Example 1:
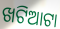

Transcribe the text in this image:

ଖଟିଆଟା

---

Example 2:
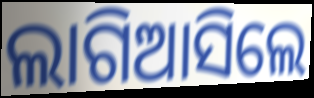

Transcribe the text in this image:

ଲାଗିଆସିଲେ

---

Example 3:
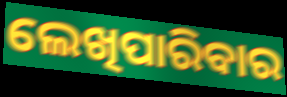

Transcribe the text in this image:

ଲେଖିପାରିବାର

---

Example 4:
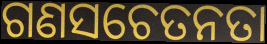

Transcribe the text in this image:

ଗଣସଚେତନତା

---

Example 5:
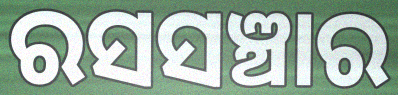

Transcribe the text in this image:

ରସସଞ୍ଚାର